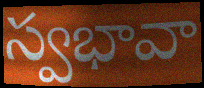
స్వభావా